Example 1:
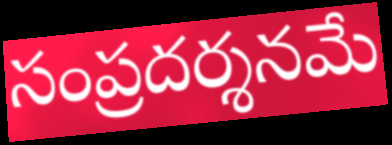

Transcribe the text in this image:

సంప్రదర్శనమే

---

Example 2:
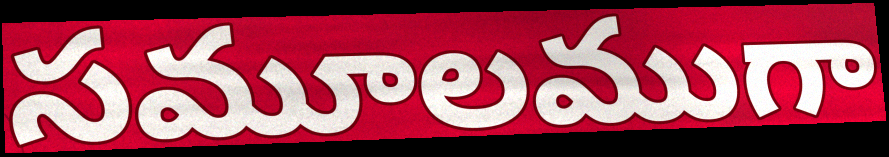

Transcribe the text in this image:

సమూలముగా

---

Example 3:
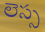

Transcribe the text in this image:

లెస్స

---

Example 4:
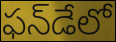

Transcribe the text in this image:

ఫన్‌డేలో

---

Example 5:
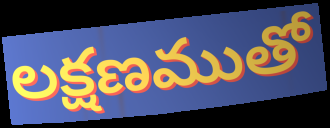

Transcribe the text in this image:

లక్షణముతో